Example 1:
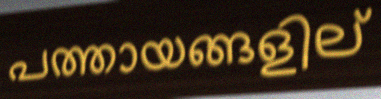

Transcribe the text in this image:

പത്തായങ്ങളില്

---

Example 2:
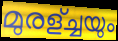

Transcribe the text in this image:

മുരള്ച്ചയും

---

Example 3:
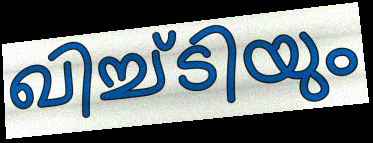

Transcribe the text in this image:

ഖിച്ച്ടിയും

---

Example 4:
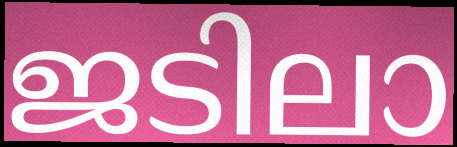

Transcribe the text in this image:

ജടിലാ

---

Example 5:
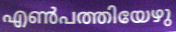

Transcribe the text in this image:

എൺപത്തിയേഴു